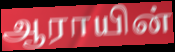
ஆராயின்